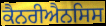
ਕੈਨਰੀਐਨਸਿਸ